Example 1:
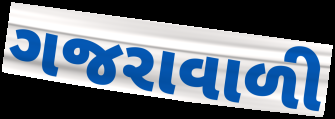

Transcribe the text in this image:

ગજરાવાળી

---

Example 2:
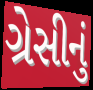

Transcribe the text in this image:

ગ્રેસીનું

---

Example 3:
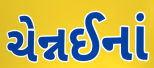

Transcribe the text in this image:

ચેન્નઈનાં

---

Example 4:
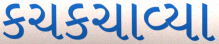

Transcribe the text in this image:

કચકચાવ્યા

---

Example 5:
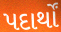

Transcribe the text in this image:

પદાર્થોં